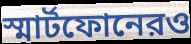
স্মার্টফোনেরও